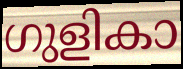
ഗുളികാ